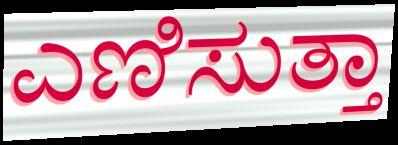
ಎಣಿಸುತ್ತಾ